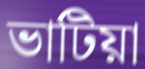
ভাটিয়া